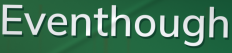
Eventhough